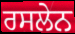
ਰਸਲੇਨ